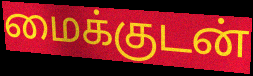
மைக்குடன்